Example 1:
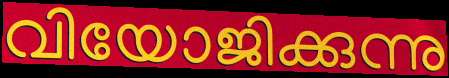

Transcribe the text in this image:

വിയോജിക്കുന്നു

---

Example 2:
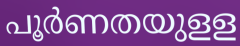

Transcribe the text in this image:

പൂർണതയുളള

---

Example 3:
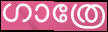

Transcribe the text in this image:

ഗാത്രേ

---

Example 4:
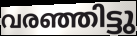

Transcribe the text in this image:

വരഞ്ഞിട്ടു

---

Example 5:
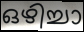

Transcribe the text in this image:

ഒഴിച്ചാ